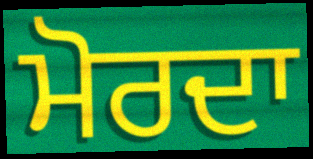
ਮੋਰਦਾ